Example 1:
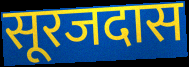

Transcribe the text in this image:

सूरजदास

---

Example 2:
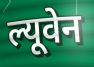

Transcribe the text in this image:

ल्यूवेन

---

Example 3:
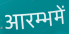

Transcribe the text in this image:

आरम्भमें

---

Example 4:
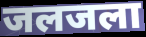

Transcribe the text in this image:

जलजला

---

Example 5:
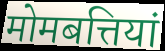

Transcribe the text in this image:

मोमबत्तियां